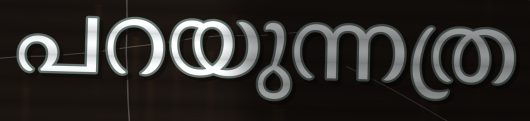
പറയുന്നത്ര